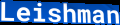
Leishman